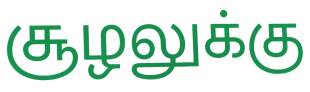
சூழலுக்கு